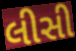
લીસી